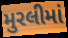
મુરલીમાં